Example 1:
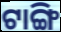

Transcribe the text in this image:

ଟାଙ୍ଗି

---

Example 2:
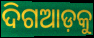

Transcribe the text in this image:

ଦିଗଆଡ଼କୁ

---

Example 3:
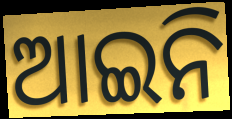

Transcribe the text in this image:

ଆଇନି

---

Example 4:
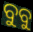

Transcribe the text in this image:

ବୁବୁ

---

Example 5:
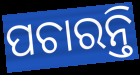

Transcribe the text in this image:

ପଚାରନ୍ତି